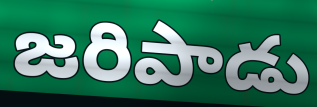
జరిపాడు